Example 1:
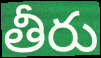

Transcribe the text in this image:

తీరు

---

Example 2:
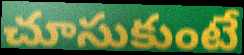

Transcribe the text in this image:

చూసుకుంటే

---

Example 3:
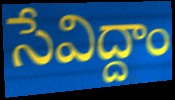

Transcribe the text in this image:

సేవిద్దాం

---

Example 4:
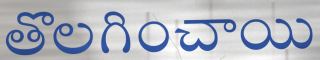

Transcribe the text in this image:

తొలగించాయి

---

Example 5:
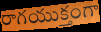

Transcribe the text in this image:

రాగయుక్తంగా